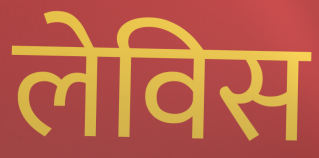
लेविस